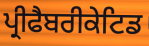
ਪ੍ਰੀਫੈਬਰੀਕੇਟਿਡ